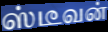
ஸ்டீவன்